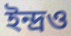
ইন্দ্রও